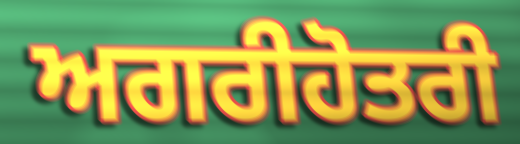
ਅਗਰੀਹੋਤਰੀ